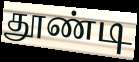
தூண்டி